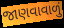
જાણવાવાળું